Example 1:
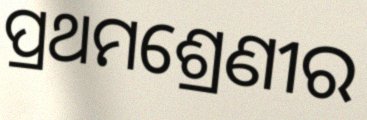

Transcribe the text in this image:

ପ୍ରଥମଶ୍ରେଣୀର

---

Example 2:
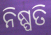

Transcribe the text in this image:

ନିଷ୍ପତି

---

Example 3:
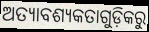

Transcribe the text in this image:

ଅତ୍ୟାବଶ୍ୟକତାଗୁଡ଼ିକରୁ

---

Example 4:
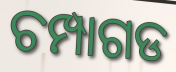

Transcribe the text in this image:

ଚମ୍ପାଗଡ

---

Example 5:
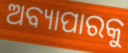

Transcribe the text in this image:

ଅବ୍ୟାପାରକୁ